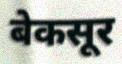
बेकसूर